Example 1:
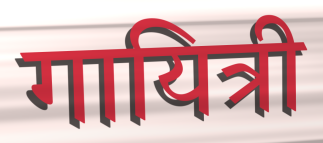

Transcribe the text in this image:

गायित्री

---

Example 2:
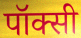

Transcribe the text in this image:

पॉक्सी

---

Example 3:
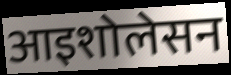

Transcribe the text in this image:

आइशोलेसन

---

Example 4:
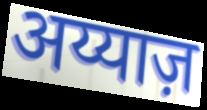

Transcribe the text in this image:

अय्याज़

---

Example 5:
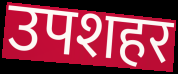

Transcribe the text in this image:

उपशहर